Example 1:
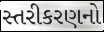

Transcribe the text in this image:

સ્તરીકરણનો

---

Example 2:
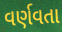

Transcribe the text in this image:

વર્ણવતા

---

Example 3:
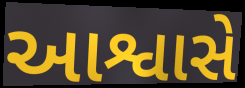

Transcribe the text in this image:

આશ્વાસે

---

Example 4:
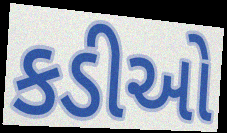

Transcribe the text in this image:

કડીઓ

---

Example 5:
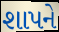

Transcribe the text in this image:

શાપને